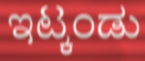
ಇಟ್ಕಂಡು